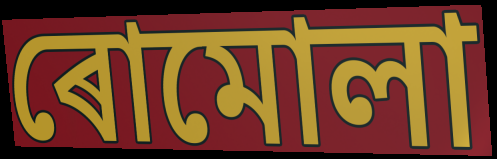
ৰোমোলা